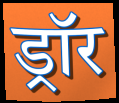
ड्रॉर